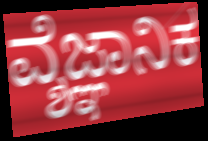
ವ್ಶೆಜ್ಞಾನಿಕ